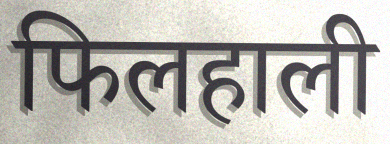
फिलहाली